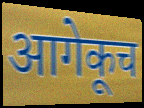
आगेकूच